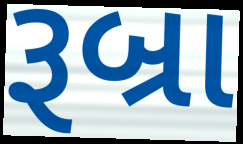
રૂબ્રા